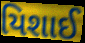
યિશાઈ